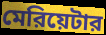
মেরিয়েটার